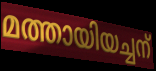
മത്തായിയച്ചന്